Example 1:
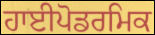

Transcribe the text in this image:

ਹਾਈਪੋਡਰਮਿਕ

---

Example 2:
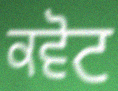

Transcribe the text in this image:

ਕਵੋਟ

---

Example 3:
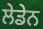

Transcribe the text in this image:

ਲੇਡੇਨ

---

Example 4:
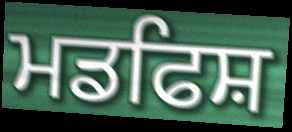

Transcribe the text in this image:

ਮਡਫਿਸ਼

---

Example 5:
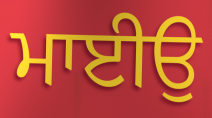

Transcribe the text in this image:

ਮਾਈਉ